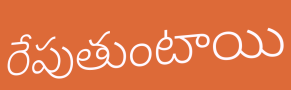
రేపుతుంటాయి